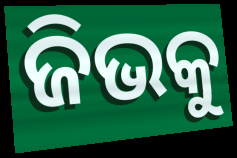
ଜିଭକୁ